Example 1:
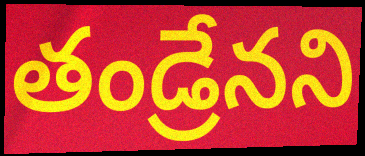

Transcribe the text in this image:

తండ్రేనని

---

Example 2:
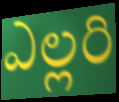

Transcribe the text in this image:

ఎల్లరి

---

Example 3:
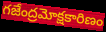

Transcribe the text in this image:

గజేంద్రమోక్షకారిణం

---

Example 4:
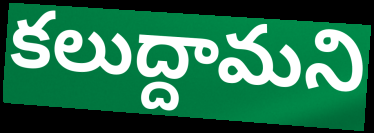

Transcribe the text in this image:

కలుద్దామని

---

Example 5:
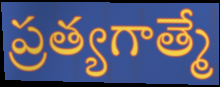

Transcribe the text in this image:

ప్రత్యగాత్మే